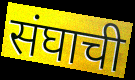
संघाची